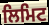
ਲਿਮਿਟ